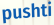
pushti